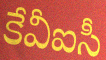
కేవీఐసీ